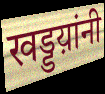
खड्डय़ांनी